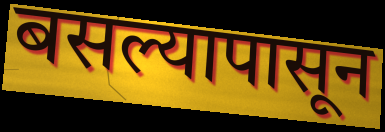
बसल्यापासून